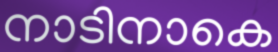
നാടിനാകെ